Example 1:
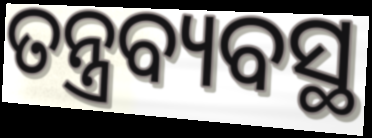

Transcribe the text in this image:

ତନ୍ତ୍ରବ୍ୟବସ୍ଥ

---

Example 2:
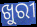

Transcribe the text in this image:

ଖୁରୀ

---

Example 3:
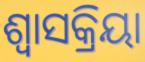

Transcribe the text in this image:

ଶ୍ବାସକ୍ରିୟା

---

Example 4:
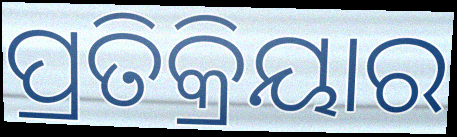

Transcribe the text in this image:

ପ୍ରତିକ୍ରିୟାର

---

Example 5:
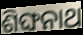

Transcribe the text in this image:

ଶିଙ୍ଘନାଥ